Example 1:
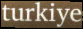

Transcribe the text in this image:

turkiye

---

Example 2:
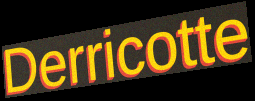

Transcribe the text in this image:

Derricotte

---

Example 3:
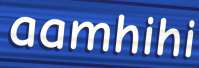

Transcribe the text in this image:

aamhihi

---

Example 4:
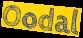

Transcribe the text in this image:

Oodal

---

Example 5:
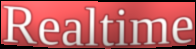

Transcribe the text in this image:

Realtime